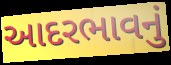
આદરભાવનું